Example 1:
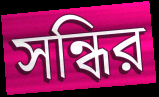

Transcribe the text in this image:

সন্ধির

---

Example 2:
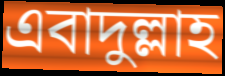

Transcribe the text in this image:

এবাদুল্লাহ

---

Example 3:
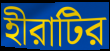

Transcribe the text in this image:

হীরাটির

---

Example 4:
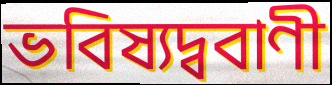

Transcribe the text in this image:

ভবিষ্যদ্ববাণী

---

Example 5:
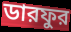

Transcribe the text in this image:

ডারফুর